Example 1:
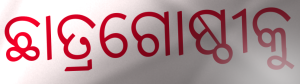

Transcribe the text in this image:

ଛାତ୍ରଗୋଷ୍ଠୀକୁ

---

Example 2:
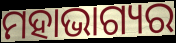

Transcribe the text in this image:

ମହାଭାଗ୍ୟର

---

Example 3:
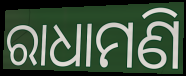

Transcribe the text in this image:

ରାଧାମଣି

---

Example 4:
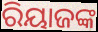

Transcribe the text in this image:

ରିୟାଜଙ୍କ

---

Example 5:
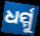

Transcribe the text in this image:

ଧର୍ମ୍ମୁ